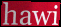
hawi